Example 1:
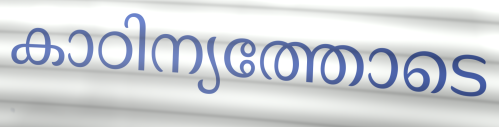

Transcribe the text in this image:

കാഠിന്യത്തോടെ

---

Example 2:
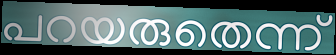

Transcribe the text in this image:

പറയരുതെന്ന്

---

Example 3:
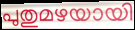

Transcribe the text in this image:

പുതുമഴയായി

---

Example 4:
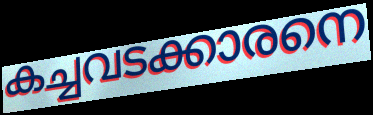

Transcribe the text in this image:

കച്ചവടക്കാരനെ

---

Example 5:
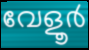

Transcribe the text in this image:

വേളൂർ